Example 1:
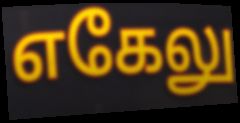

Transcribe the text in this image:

எகேலு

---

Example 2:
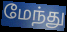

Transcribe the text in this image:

மேந்து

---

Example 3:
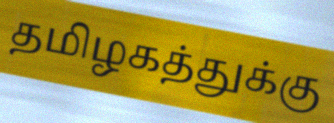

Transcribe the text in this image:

தமிழகத்துக்கு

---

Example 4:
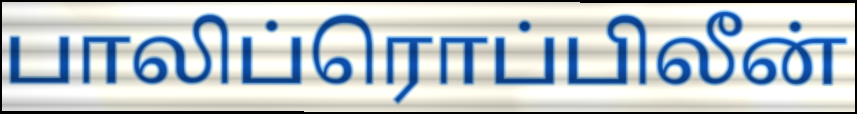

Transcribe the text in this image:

பாலிப்ரொப்பிலீன்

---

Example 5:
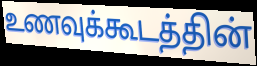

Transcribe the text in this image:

உணவுக்கூடத்தின்